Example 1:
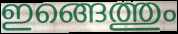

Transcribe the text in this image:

ഇങ്ങെത്തും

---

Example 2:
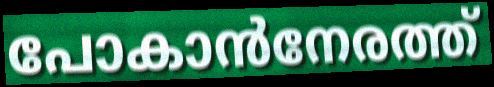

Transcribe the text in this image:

പോകാൻനേരത്ത്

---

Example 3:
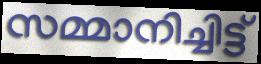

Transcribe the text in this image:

സമ്മാനിച്ചിട്ട്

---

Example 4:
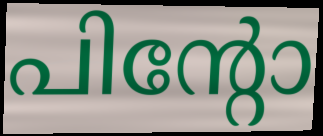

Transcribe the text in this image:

പിന്റോ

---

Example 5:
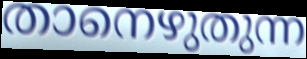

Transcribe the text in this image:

താനെഴുതുന്ന